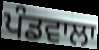
ਪੰਡਵਾਲਾ